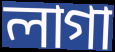
লাগা